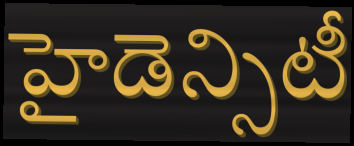
హైడెన్సిటీ